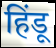
हिंडू